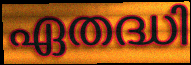
ഏതദ്ധി